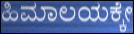
ಹಿಮಾಲಯಕ್ಕೇ